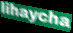
lihaycha